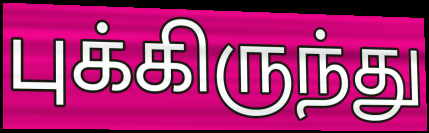
புக்கிருந்து